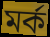
মর্ক